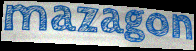
mazagon